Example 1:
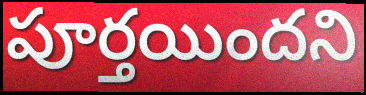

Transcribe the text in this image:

పూర్తయిందని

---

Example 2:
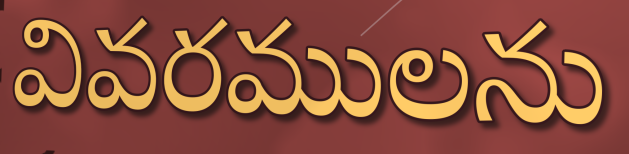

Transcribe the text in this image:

వివరములను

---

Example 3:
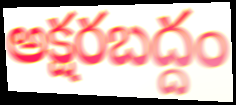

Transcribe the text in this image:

అక్షరబద్దం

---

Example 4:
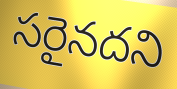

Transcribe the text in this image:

సరైనదని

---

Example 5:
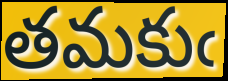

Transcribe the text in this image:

తమకుఁ